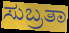
ಸುಬ್ರತಾ